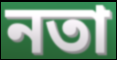
নতা